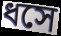
ধসে